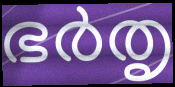
ഭർതൃ